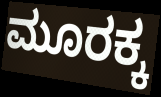
ಮೂರಕ್ಕ